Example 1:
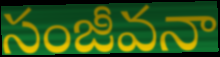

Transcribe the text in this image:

సంజీవనా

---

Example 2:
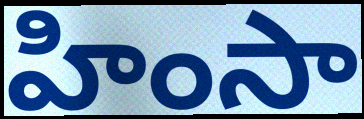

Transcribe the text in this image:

హింసా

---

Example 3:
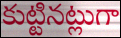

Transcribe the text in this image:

కుట్టినట్లుగా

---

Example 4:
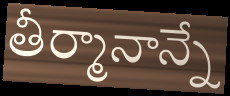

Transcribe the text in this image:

తీర్మానాన్నే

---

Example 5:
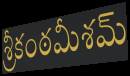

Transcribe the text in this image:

శ్రీకంఠమీశమ్